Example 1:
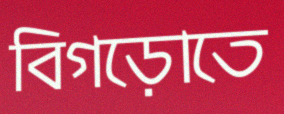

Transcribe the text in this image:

বিগড়োতে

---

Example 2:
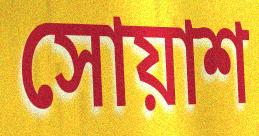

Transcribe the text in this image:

সোয়াশ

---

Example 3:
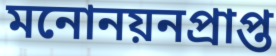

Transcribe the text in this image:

মনোনয়নপ্রাপ্ত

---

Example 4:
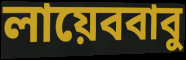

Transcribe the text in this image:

লায়েববাবু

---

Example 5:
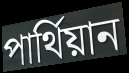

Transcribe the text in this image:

পার্থিয়ান